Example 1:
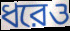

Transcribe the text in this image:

ধরেও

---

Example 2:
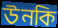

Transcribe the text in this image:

উনকি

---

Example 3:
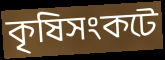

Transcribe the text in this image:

কৃষিসংকটে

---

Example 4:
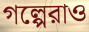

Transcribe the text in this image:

গল্পেরাও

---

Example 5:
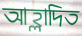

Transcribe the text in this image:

আহ্লাদিত